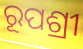
ରୂପଶ୍ରୀ